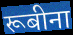
रूबीना